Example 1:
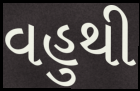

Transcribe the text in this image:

વહુથી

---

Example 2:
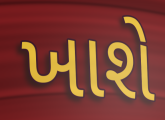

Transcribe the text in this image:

ખાશે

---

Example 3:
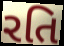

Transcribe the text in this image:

રતિ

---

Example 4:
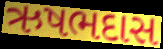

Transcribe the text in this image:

ઋષભદાસ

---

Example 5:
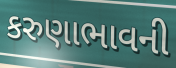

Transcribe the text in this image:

કરુણાભાવની